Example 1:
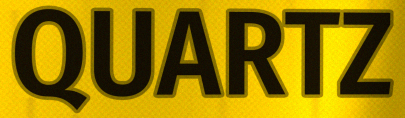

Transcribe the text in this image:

QUARTZ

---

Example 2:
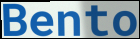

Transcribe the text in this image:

Bento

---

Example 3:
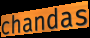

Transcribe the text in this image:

chandas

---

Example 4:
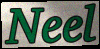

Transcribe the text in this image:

Neel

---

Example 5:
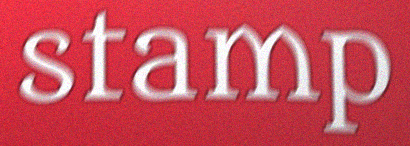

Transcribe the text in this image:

stamp